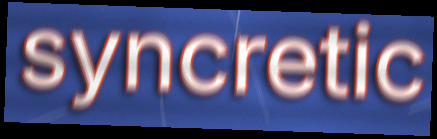
syncretic